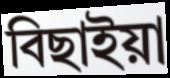
বিছাইয়া